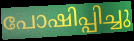
പോഷിപ്പിച്ചു